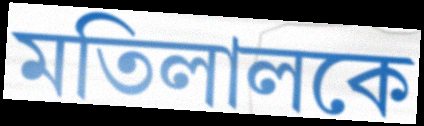
মতিলালকে